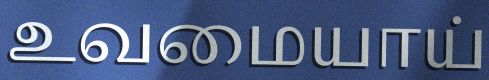
உவமையாய்